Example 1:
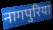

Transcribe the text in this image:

नागपुरिया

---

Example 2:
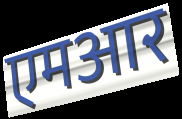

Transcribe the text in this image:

एमआर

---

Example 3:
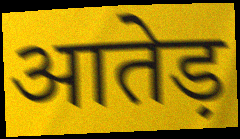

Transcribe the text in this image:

आतेड़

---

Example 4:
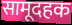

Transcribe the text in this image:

सामूदहक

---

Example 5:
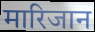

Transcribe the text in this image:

मारिजान